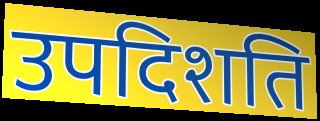
उपदिशति